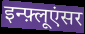
इन्फ़्लूएंसर